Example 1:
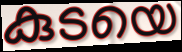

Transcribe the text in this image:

കുടയെ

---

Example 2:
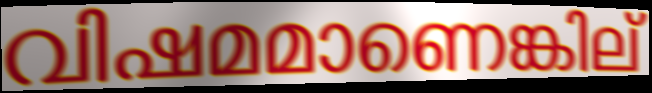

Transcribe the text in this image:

വിഷമമാണെങ്കില്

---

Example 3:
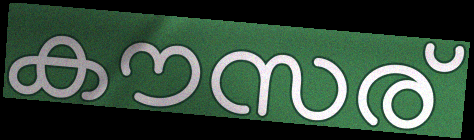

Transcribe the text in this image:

കൗസര്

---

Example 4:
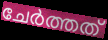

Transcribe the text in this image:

ചേർത്തത്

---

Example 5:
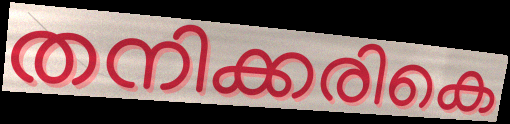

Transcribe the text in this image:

തനിക്കരികെ